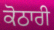
ਕੋਠਾਰੀ